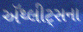
ઍથ્લીટ્સના